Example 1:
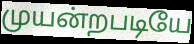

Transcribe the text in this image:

முயன்றபடியே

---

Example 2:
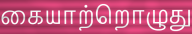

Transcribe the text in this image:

கையாற்றொழுது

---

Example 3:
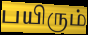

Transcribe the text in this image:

பயிரும்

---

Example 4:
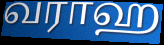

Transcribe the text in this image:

வராஹ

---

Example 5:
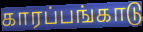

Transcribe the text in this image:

காரப்பங்காடு